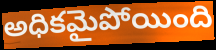
అధికమైపోయింది